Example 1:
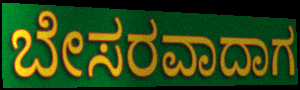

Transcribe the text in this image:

ಬೇಸರವಾದಾಗ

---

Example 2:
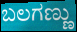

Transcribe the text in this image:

ಬಲಗಣ್ಣು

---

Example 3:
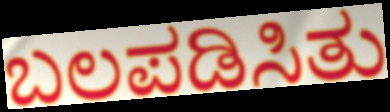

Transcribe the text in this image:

ಬಲಪಡಿಸಿತು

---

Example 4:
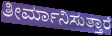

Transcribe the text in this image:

ತೀರ್ಮಾನಿಸುತ್ತಾರೆ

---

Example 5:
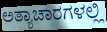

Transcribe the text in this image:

ಅತ್ಯಾಚಾರಗಳಲ್ಲಿ